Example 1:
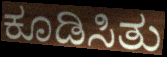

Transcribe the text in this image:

ಕೂಡಿಸಿತು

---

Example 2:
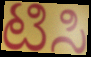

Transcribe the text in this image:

ಟಿಸಿ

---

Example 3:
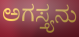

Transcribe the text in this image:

ಅಗಸ್ತ್ಯನು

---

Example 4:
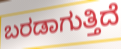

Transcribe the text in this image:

ಬರಡಾಗುತ್ತಿದೆ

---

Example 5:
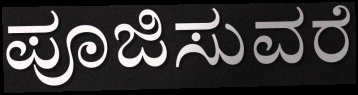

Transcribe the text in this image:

ಪೂಜಿಸುವರೆ